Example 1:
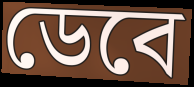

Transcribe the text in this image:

ডেবে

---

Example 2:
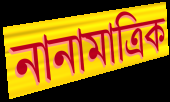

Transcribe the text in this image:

নানামাত্রিক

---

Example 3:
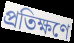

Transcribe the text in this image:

প্রতিক্ষণে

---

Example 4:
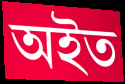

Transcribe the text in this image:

অইত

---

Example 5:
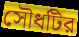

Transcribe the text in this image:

সৌধটির